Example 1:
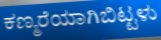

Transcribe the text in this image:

ಕಣ್ಮರೆಯಾಗಿಬಿಟ್ಟಳು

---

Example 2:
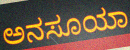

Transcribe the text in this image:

ಅನಸೂಯಾ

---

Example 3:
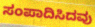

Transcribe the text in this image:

ಸಂಪಾದಿಸಿದವು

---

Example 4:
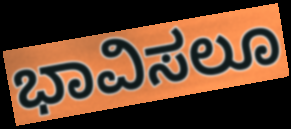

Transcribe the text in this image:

ಭಾವಿಸಲೂ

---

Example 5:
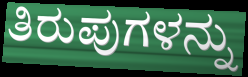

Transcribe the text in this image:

ತಿರುಪುಗಳನ್ನು